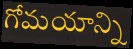
గోమయాన్ని